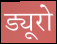
ड्यूरो